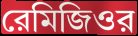
রেমিজিওর